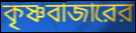
কৃষ্ণবাজারের